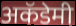
अकॅडेमी